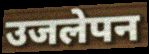
उजलेपन